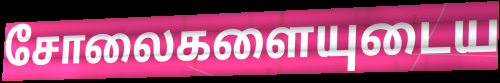
சோலைகளையுடைய